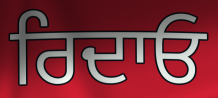
ਰਿਦਾਓ